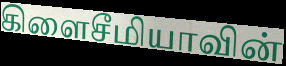
கிளைசீமியாவின்